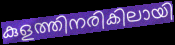
കുളത്തിനരികിലായി